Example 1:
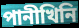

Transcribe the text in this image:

পানীখিনি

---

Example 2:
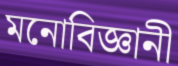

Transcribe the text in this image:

মনোবিজ্ঞানী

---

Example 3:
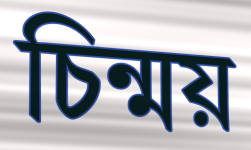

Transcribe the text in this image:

চিন্ময়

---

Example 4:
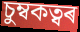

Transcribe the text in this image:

চুম্বকত্বৰ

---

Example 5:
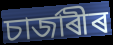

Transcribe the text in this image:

চাৰ্জাৰীৰ